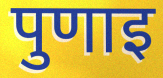
पुणाइ